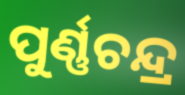
ପୁର୍ଣ୍ଣଚନ୍ଦ୍ର